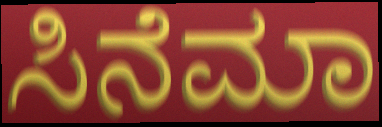
ಸಿನೆಮಾ